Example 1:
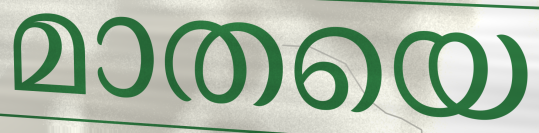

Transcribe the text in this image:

മാതയെ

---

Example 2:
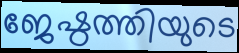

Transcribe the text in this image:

ജേഷ്ഠത്തിയുടെ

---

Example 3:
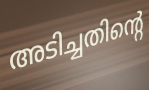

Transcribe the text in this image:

അടിച്ചതിന്റെ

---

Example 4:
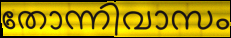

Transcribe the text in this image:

തോന്നിവാസം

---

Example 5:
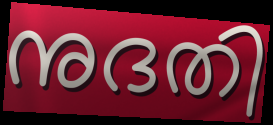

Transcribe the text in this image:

നുദതി